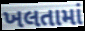
ખલતામાં